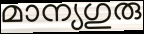
മാന്യഗുരു